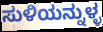
ಸುಳಿಯನ್ನುಳ್ಳ